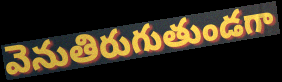
వెనుతిరుగుతుండగా